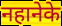
नहानेके